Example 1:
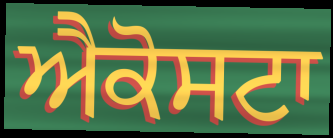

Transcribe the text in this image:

ਐਕੋਸਟਾ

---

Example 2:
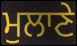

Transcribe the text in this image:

ਮੁਲਾਣੇ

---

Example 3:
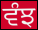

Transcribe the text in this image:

ਵੰਝ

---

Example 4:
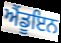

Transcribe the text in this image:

ਐਂਡੂਇਨ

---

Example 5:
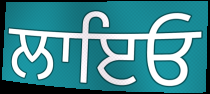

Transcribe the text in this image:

ਲਾਇਓ